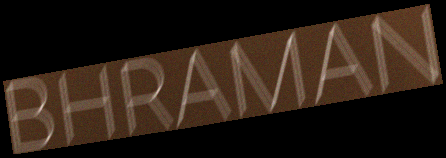
BHRAMAN